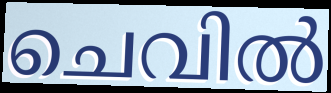
ചെവിൽ